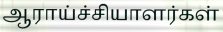
ஆராய்ச்சியாளர்கள்